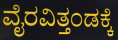
ವೈರವಿತ್ತಂಡಕ್ಕೆ